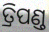
ତ୍ରିପଣ୍ଡ